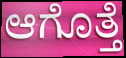
ಆಗೊತ್ತೆ